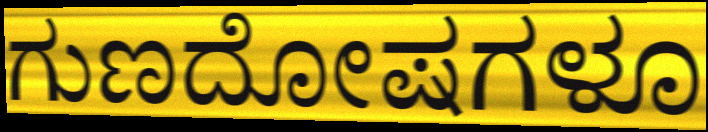
ಗುಣದೋಷಗಳೂ